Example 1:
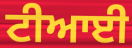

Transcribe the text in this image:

ਟੀਆਈ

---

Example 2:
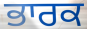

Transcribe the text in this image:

ਭਾਰਕ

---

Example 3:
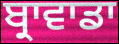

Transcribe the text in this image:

ਬ੍ਰਾਵਾਡਾ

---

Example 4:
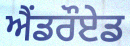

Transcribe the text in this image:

ਐਂਡਰੌਏਡ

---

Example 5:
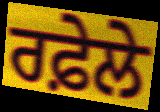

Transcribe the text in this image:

ਰਫ਼ੇਲੇ